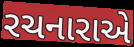
રચનારાએ